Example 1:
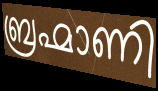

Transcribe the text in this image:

ബ്രഹ്മാണി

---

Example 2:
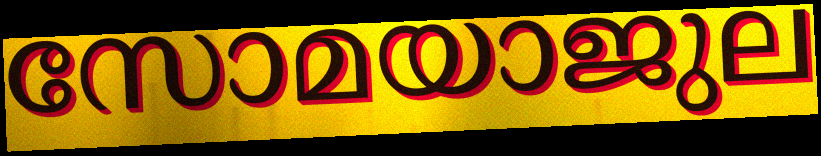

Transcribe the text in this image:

സോമയാജുല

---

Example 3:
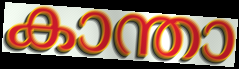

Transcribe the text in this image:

കാന്താ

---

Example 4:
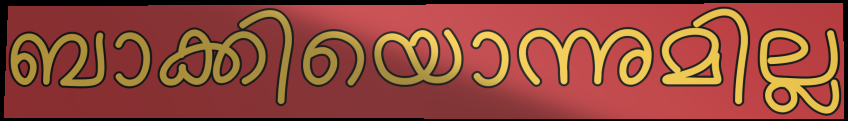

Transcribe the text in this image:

ബാക്കിയൊന്നുമില്ല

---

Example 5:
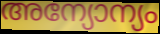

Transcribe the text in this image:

അന്യോന്യം